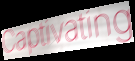
Captivating